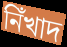
নিঁখাদ